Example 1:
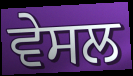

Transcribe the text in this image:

ਵੇਸਲ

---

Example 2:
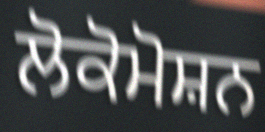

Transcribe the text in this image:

ਲੋਕੋਮੋਸ਼ਨ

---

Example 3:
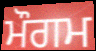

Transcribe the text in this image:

ਮੌਗਮ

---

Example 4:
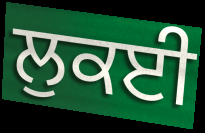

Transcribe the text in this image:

ਲੁਕਈ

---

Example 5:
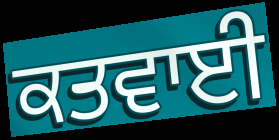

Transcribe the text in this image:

ਕਤਵਾਈ